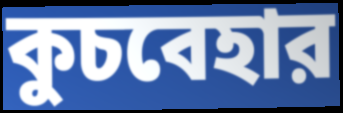
কুচবেহার